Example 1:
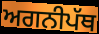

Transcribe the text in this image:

ਅਗਨੀਪੱਥ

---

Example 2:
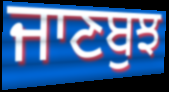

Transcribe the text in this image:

ਜਾਣਬੁਝ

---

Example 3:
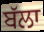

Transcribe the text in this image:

ਬੱਲਾ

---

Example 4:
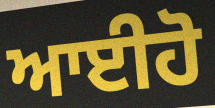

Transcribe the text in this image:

ਆਈਹੋ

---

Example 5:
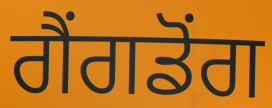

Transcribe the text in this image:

ਗੈਂਗਡੋਂਗ